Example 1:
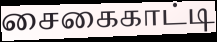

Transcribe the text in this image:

சைகைகாட்டி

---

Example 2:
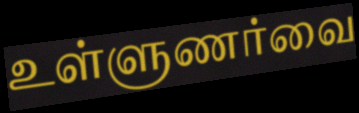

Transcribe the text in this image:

உள்ளுணர்வை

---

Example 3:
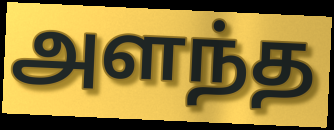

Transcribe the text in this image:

அளந்த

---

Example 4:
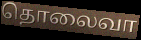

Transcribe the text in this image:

தொலைவா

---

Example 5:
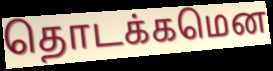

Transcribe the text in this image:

தொடக்கமென